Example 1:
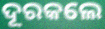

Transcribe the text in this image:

ଦୂରକଲେ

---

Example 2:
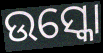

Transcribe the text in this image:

ଉସ୍କୋ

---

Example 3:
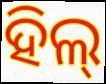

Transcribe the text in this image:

ହିଲ୍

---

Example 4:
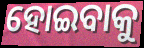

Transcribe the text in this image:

ହୋଇବାକୁ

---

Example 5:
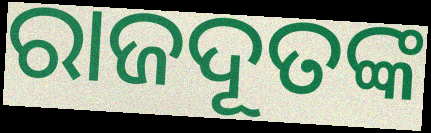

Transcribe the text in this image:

ରାଜଦୂତଙ୍କ